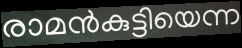
രാമൻകുട്ടിയെന്ന